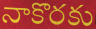
నాకొరకు